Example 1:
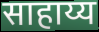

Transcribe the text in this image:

साहाय्य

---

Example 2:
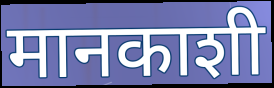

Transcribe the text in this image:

मानकाशी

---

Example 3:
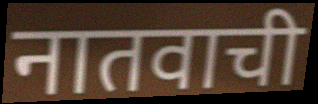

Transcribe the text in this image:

नातवाची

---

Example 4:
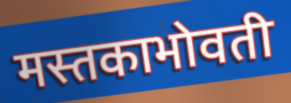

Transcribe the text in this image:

मस्तकाभोवती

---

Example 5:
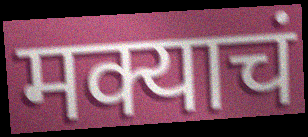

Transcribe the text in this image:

मक्याचं